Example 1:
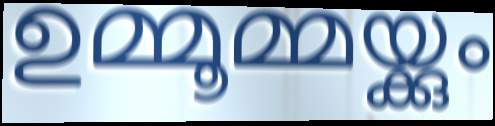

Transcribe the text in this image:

ഉമ്മൂമ്മയ്ക്കും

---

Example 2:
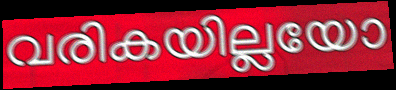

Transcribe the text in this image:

വരികയില്ലയോ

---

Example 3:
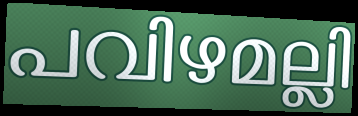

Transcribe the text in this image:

പവിഴമല്ലി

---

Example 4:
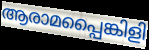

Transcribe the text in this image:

ആരാമപ്പൈങ്കിളി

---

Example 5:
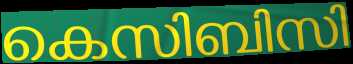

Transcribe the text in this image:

കെസിബിസി